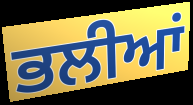
ਭਲੀਆਂ